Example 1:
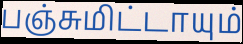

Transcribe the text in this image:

பஞ்சுமிட்டாயும்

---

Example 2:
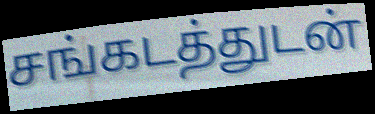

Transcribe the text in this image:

சங்கடத்துடன்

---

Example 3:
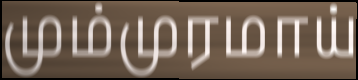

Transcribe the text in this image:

மும்முரமாய்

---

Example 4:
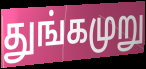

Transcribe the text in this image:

துங்கமுறு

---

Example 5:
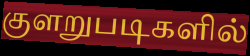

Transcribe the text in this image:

குளறுபடிகளில்